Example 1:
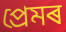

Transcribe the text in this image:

প্ৰেমৰ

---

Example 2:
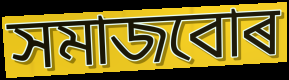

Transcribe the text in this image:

সমাজবোৰ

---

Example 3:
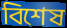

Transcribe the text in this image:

বিশেষ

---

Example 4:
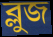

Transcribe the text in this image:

ব্লুজ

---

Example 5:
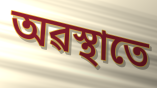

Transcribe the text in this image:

অৱস্থাতে